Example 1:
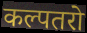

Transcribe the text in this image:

कल्पतरो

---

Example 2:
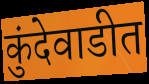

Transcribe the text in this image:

कुंदेवाडीत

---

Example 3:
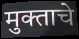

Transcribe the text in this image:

मुक्ताचे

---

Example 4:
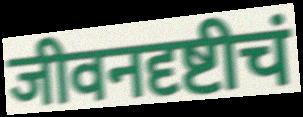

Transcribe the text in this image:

जीवनदृष्टीचं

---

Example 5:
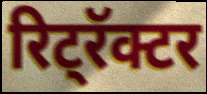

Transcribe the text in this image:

रिट्रॅक्टर